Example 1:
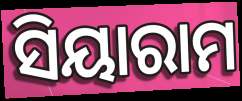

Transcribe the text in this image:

ସିୟାରାମ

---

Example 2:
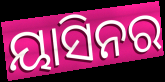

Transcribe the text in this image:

ୟାସିନର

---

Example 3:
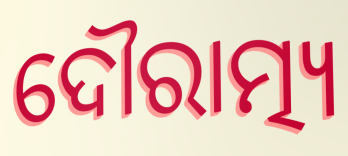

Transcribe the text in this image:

ଦୌରାତ୍ମ୍ୟ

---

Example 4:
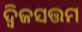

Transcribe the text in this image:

ଦ୍ୱିଜସତ୍ତମ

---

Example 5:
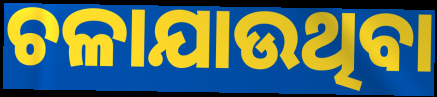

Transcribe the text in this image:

ଚଳାଯାଉଥିବା